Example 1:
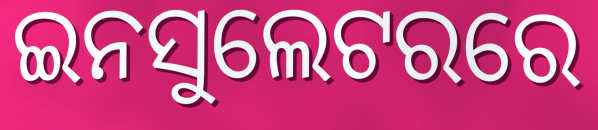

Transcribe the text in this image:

ଇନସୁଲେଟରରେ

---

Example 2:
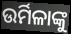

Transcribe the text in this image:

ଉର୍ମିଳାଙ୍କୁ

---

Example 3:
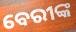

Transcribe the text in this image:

ବେରୀଙ୍କ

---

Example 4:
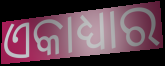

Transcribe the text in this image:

ଏକାଧ୍ୟାର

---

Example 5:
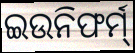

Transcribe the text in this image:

ଇଉନିଫର୍ମ୍